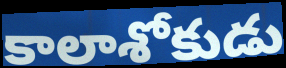
కాలాశోకుడు